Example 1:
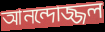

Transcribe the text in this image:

আনন্দোজ্জল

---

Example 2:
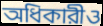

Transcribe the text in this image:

অধিকারীও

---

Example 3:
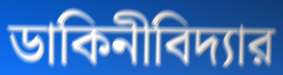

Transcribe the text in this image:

ডাকিনীবিদ্যার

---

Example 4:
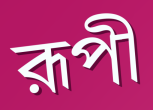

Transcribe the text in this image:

রূপী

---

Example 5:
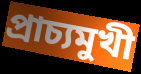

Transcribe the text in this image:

প্রাচ্যমুখী